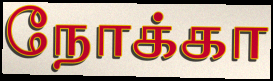
நோக்கா